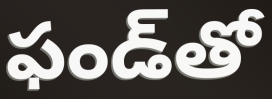
ఫండ్‌తో